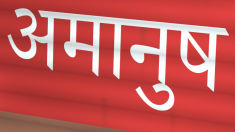
अमानुष